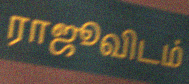
ராஜூவிடம்